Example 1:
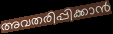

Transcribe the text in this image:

അവതരിപ്പിക്കാൻ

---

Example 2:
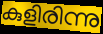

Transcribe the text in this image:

കുളിരിന്നു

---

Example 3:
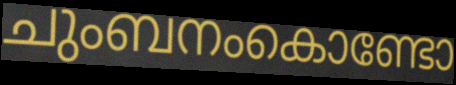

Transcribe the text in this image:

ചുംബനംകൊണ്ടോ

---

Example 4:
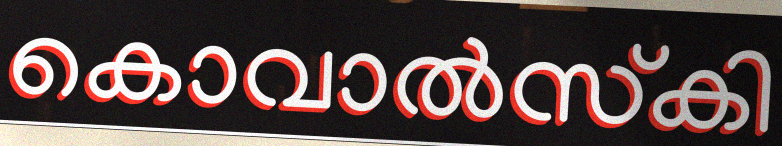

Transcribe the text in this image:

കൊവാൽസ്‌കി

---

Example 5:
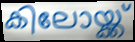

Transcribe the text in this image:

കിലോയ്ക്ക്